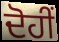
ਦੋਹੀਂ